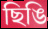
ছিঙি